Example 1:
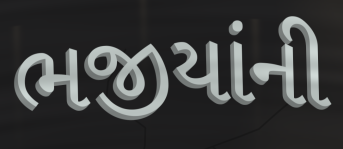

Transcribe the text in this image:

ભજીયાંની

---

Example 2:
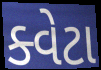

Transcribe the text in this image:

ક્વેટા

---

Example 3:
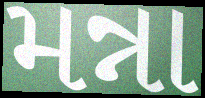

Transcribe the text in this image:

મન્ના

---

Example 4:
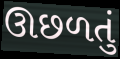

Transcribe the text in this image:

ઊછળતું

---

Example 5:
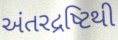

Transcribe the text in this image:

અંતરદ્રષ્ટિથી